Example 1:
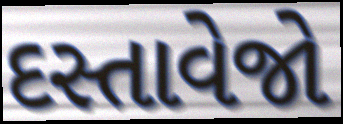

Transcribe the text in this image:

દસ્તાવેજો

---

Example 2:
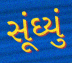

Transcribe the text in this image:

સૂંઘ્યું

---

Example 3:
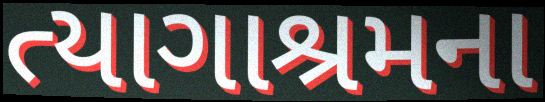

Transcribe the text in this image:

ત્યાગાશ્રમના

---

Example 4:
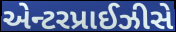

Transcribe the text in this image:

એન્ટરપ્રાઈઝીસે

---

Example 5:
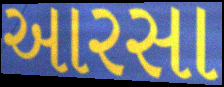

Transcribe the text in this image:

આરસા